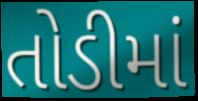
તોડીમાં